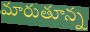
మారుతూన్న